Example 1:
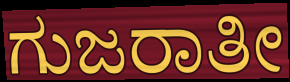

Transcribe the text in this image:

ಗುಜರಾತೀ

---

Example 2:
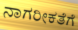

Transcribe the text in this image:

ನಾಗರೀಕತೆಗೆ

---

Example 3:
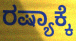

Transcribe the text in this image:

ರಷ್ಯಾಕ್ಕೆ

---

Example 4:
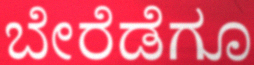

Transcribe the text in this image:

ಬೇರೆಡೆಗೂ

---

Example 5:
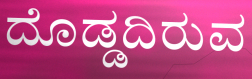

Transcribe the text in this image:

ದೊಡ್ಡದಿರುವ